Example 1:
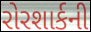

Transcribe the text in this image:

રોરશાર્કની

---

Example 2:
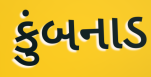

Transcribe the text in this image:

કુંબનાડ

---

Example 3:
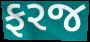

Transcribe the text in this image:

ફરજ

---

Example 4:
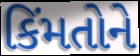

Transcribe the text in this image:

કિંમતોને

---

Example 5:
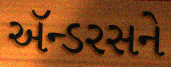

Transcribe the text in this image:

ઍન્ડરસને